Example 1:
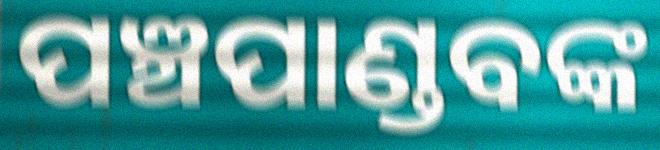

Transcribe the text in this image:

ପଞ୍ଚପାଣ୍ଡବଙ୍କ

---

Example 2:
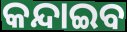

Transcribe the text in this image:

କନ୍ଦାଇବ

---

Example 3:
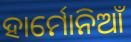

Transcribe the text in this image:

ହାର୍ମୋନିଆଁ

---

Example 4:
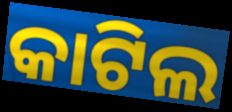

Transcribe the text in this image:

କାଟିଲ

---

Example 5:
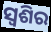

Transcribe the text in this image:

ସ୍ଵଶିର